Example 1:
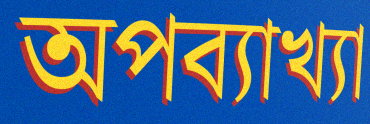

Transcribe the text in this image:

অপব্যাখ্যা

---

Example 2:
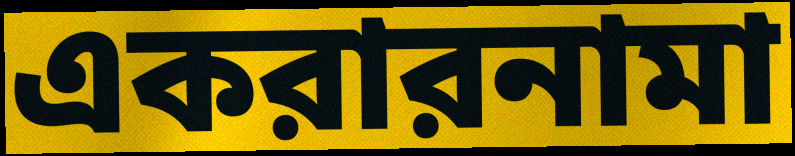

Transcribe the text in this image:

একরারনামা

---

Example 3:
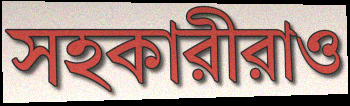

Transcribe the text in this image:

সহকারীরাও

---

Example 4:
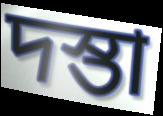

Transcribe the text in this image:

দস্তা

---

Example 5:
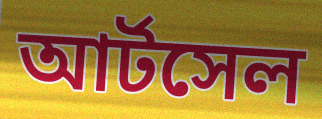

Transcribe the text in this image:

আর্টসেল